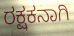
ರಕ್ಷಕನಾಗಿ